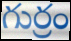
గుర్రం